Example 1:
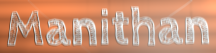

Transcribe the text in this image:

Manithan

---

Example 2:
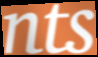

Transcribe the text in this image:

nts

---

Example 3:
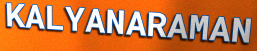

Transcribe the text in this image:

KALYANARAMAN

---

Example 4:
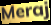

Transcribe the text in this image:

Meraj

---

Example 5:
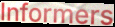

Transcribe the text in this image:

Informers